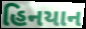
હિનયાન